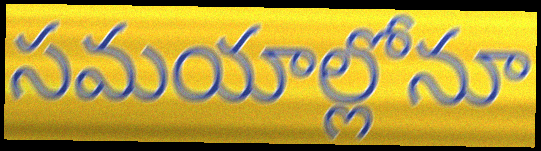
సమయాల్లోనూ